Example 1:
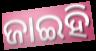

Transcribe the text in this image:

ଜାଇହି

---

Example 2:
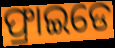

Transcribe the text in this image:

ଫ୍ରାଇଡେ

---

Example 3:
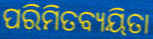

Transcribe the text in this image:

ପରିମିତବ୍ୟୟିତା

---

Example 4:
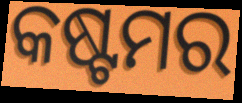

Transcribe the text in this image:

କଷ୍ଟମର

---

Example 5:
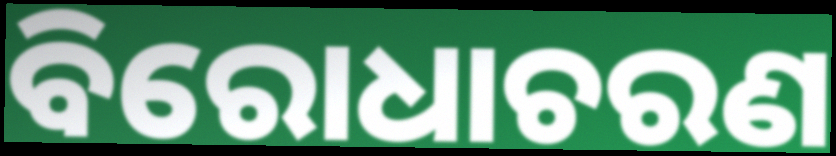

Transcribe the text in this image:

ବିରୋଧାଚରଣ